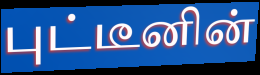
புட்டீனின்